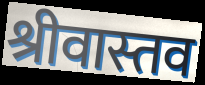
श्रीवास्‍तव